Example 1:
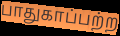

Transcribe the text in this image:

பாதுகாப்பற்ற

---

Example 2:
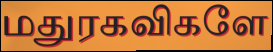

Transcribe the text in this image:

மதுரகவிகளே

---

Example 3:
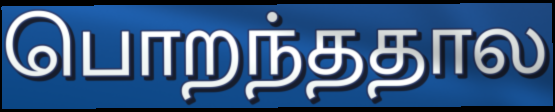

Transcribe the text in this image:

பொறந்ததால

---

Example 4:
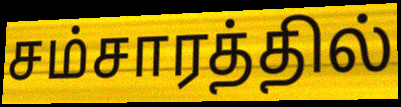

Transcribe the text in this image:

சம்சாரத்தில்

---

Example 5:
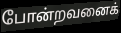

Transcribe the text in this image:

போன்றவனைக்